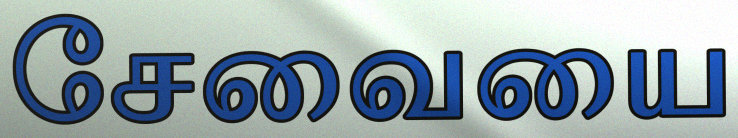
சேவையை